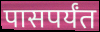
पासपर्यंत